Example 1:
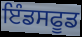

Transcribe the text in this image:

ਇੰਡਸਫੂਡ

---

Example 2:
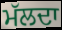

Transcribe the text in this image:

ਮੱਲਦਾ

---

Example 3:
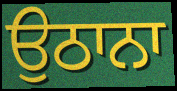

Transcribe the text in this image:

ਉਠਾਨਾ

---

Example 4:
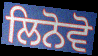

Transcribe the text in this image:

ਲਿਨੋਵੋ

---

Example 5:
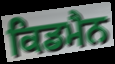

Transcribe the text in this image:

ਕਿਡਮੈਨ